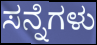
ಸನ್ನೆಗಳು